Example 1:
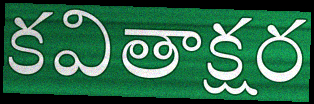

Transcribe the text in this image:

కవితాక్షర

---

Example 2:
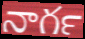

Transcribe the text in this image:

నాగర్‍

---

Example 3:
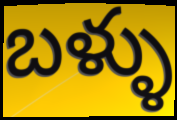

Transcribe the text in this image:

బళ్ళు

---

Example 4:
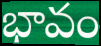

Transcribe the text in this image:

భావం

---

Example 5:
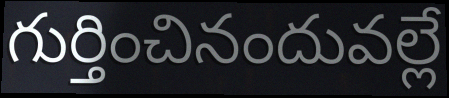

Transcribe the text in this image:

గుర్తించినందువల్లే